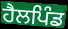
ਹੈਲਪਿੰਡ